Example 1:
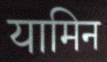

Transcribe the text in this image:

यामिन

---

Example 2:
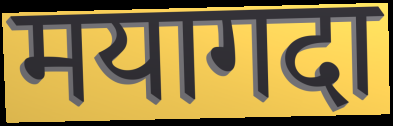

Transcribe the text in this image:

मयागदा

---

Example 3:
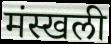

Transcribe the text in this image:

मंस्खली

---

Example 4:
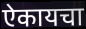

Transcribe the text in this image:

ऐकायचा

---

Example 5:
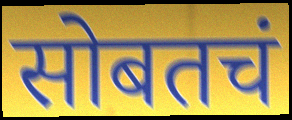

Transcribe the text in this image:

सोबतचं